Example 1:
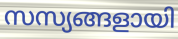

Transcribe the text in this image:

സസ്യങ്ങളായി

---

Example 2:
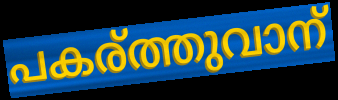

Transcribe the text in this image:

പകര്ത്തുവാന്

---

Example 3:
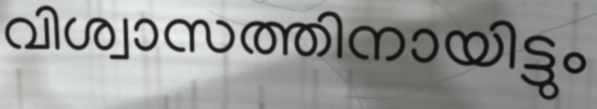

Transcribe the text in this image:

വിശ്വാസത്തിനായിട്ടും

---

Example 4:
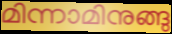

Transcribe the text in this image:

മിന്നാമിനുങ്ങു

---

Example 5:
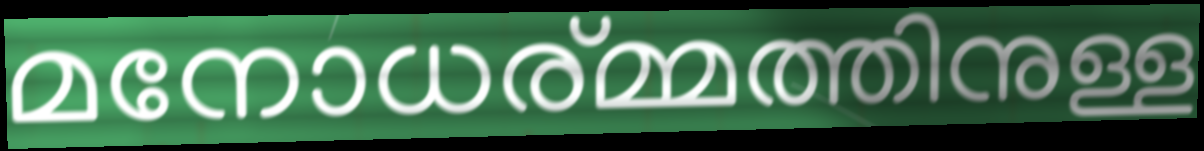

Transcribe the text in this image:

മനോധര്മ്മത്തിനുള്ള